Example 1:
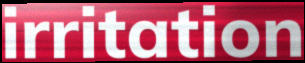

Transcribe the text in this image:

irritation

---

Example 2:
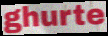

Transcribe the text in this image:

ghurte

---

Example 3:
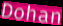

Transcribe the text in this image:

Dohan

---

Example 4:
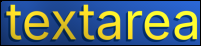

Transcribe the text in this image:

textarea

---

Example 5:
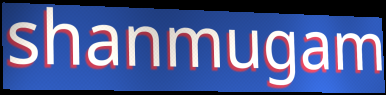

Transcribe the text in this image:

shanmugam